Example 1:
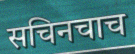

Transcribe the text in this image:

सचिनचाच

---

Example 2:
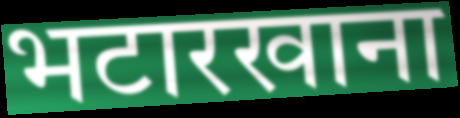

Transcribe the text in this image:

भटारखाना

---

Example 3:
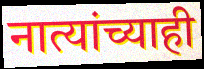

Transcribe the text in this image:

नात्यांच्याही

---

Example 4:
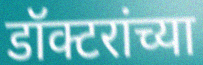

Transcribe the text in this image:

डॉक्टरांच्या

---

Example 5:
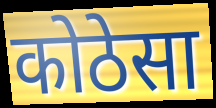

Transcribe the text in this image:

कोठेसा